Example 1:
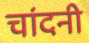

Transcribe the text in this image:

चांदनी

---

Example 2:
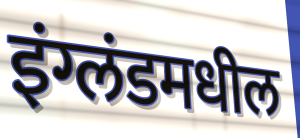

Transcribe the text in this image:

इंग्लंडमधील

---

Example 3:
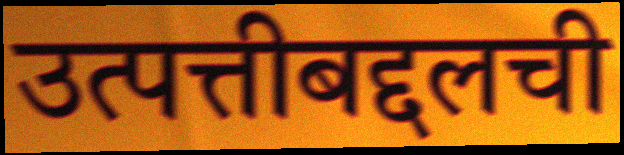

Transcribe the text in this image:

उत्पत्तीबद्दलची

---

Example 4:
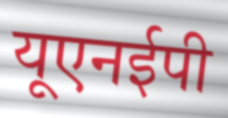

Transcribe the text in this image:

यूएनईपी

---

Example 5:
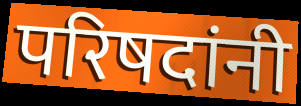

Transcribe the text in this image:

परिषदांनी